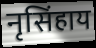
नृसिंहाय